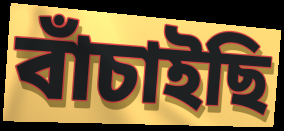
বাঁচাইছি